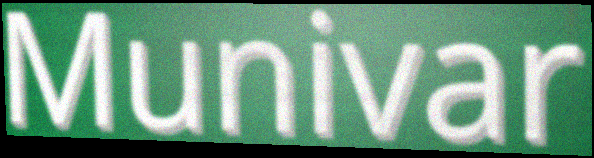
Munivar